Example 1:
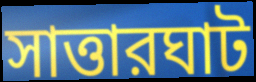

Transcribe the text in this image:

সাত্তারঘাট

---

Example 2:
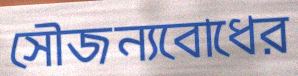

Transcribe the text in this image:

সৌজন্যবোধের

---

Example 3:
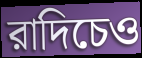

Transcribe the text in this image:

রাদিচেও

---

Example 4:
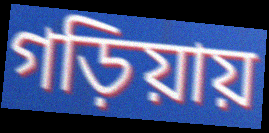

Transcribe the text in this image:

গড়িয়ায়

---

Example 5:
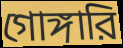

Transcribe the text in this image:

গোঙ্গারি